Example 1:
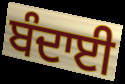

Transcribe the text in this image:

ਬੰਦਾਈ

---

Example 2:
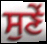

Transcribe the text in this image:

ਸੁਣੇਂ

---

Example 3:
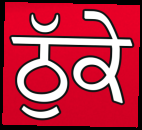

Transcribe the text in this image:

ਠੁੱਕੇ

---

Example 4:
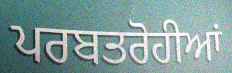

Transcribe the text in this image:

ਪਰਬਤਰੋਹੀਆਂ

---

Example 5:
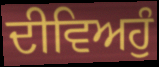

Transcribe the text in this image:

ਦੀਵਿਅਹੁੰ